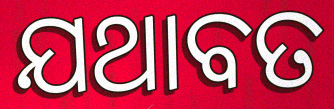
ଯଥାବତ